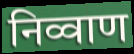
निव्वाण